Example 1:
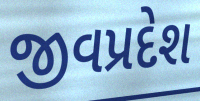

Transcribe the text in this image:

જીવપ્રદેશ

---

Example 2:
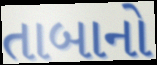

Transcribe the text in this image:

તાબાનો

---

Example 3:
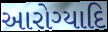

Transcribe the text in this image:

આરોગ્યાદિ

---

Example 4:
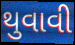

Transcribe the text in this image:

થુવાવી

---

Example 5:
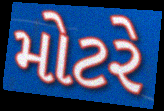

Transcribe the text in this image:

મોટરે